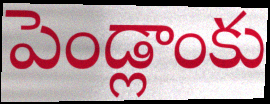
పెండ్లాంకు